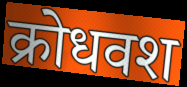
क्रोधवश